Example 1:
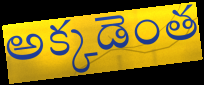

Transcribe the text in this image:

అక్కడెంత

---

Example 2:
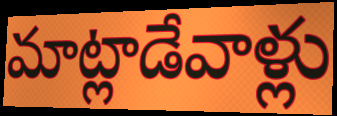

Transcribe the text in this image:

మాట్లాడేవాళ్లు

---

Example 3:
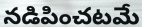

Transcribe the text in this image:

నడిపించటమే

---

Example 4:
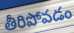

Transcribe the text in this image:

తీరిపోవడం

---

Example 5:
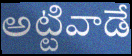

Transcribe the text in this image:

అట్టివాడే